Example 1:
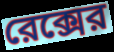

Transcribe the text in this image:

রেক্সের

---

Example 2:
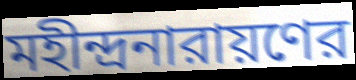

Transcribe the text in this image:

মহীন্দ্রনারায়ণের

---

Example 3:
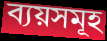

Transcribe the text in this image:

ব্যয়সমূহ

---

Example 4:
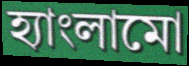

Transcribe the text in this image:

হ্যাংলামো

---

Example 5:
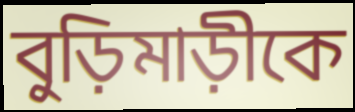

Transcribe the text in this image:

বুড়িমাড়ীকে